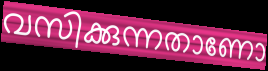
വസിക്കുന്നതാണോ